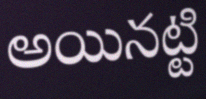
అయినట్టి